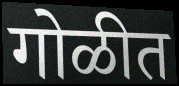
गोळीत